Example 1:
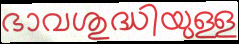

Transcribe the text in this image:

ഭാവശുദ്ധിയുള്ള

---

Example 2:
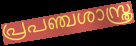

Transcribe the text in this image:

പ്രപഞ്ചശാസ്ത്ര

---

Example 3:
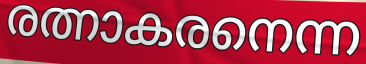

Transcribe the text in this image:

രത്നാകരനെന്ന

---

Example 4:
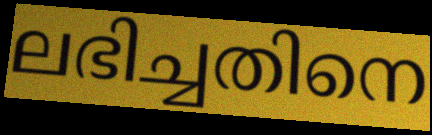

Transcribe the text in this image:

ലഭിച്ചതിനെ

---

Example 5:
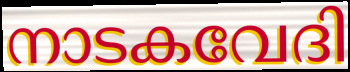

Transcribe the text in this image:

നാടകവേദി